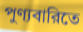
পুণ্যবারিতে